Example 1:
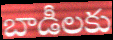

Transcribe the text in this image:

బాడీలకు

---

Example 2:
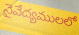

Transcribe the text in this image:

నైవేద్యములలో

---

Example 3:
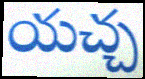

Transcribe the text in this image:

యచ్చ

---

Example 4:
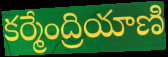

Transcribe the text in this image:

కర్మేంద్రియాణి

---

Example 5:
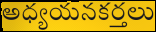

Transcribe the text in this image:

అధ్యయనకర్తలు